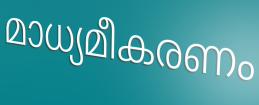
മാധ്യമീകരണം